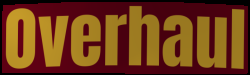
Overhaul